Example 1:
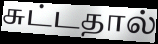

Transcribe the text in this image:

சுட்டதால்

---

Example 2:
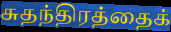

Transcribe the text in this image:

சுதந்திரத்தைக்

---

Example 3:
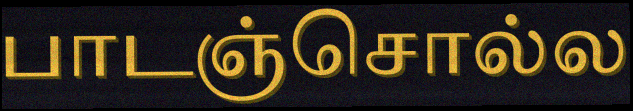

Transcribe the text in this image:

பாடஞ்சொல்ல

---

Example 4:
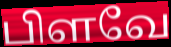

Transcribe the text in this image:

பிளவே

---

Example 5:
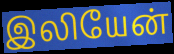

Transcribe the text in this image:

இலியேன்